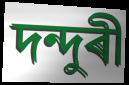
দন্দুৰী